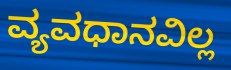
ವ್ಯವಧಾನವಿಲ್ಲ